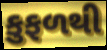
કુફળથી